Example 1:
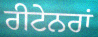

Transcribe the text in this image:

ਰੀਟੇਨਰਾਂ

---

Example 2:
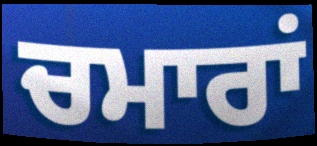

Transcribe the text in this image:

ਚਮਾਰਾਂ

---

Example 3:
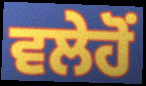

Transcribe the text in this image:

ਵਲੇਹੋਂ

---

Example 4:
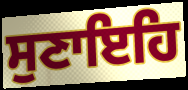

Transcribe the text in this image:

ਸੁਣਾਇਹਿ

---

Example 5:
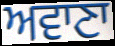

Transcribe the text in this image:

ਅਵਾਣਾ